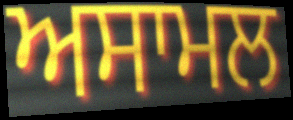
ਅਸਾਮਲ